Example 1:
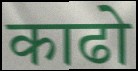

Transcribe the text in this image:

काढो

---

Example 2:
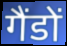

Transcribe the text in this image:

गैंडों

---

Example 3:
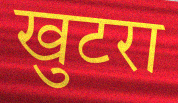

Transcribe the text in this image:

खुटरा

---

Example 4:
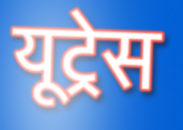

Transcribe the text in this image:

यूट्रेस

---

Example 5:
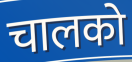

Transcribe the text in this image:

चालको